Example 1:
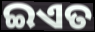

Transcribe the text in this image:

ଇଏତ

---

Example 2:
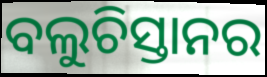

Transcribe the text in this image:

ବଲୁଚିସ୍ତାନର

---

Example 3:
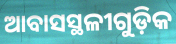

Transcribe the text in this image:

ଆବାସସ୍ଥଳୀଗୁଡ଼ିକ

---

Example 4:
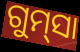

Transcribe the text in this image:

ଗୁମ୍‌ସା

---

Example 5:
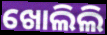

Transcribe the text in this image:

ଖୋଲିଲି